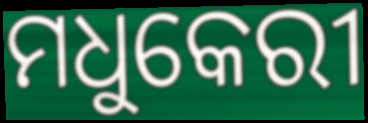
ମଧୁକେରୀ